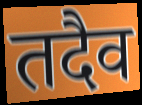
तदैव